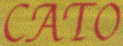
CATO